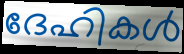
ദേഹികൾ